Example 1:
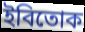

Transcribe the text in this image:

ইবিতোক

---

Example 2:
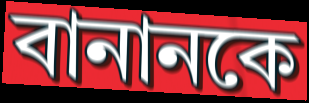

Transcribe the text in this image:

বানানকে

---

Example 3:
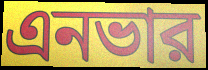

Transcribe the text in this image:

এনভার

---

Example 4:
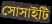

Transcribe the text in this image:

সোসাইটি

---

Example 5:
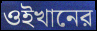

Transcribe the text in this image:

ওইখানের